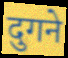
दुगने